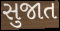
સુજાત